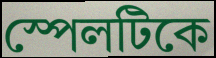
স্পেলটিকে